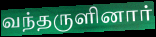
வந்தருளினார்